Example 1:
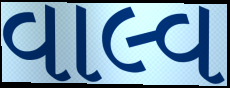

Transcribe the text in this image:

વાલ્વ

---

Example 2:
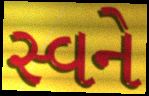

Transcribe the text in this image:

સ્વને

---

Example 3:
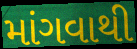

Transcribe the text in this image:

માંગવાથી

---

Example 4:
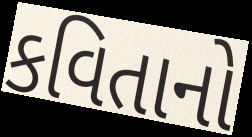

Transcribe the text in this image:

કવિતાનો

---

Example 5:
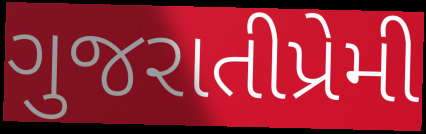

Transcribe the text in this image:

ગુજરાતીપ્રેમી